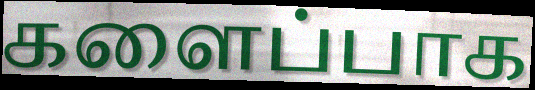
களைப்பாக